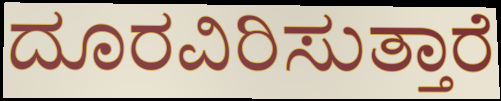
ದೂರವಿರಿಸುತ್ತಾರೆ